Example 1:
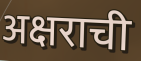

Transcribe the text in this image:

अक्षराची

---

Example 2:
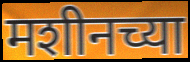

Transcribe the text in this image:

मशीनच्या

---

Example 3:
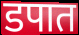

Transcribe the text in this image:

डपात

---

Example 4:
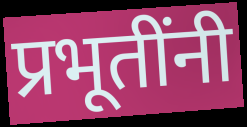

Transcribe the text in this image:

प्रभूतींनी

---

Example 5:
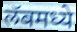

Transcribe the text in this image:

लॅबमध्ये